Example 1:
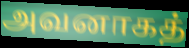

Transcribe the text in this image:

அவனாகத்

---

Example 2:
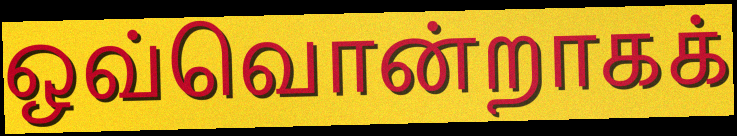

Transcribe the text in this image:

ஒவ்வொன்றாகக்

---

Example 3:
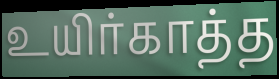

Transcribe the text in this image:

உயிர்காத்த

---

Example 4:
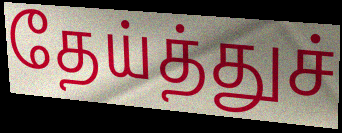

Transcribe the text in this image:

தேய்த்துச்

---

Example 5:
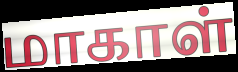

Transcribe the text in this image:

மாகாள்